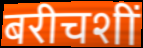
बरीचशीं